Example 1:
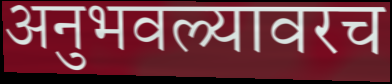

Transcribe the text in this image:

अनुभवल्यावरच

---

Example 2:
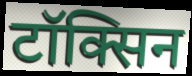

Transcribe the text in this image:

टॉक्सिन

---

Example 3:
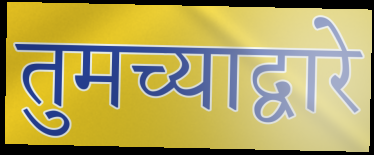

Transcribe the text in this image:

तुमच्याद्वारे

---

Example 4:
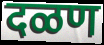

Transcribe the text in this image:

दळण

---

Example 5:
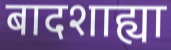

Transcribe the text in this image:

बादशाह्या